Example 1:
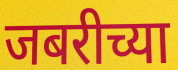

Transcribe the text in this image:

जबरीच्या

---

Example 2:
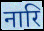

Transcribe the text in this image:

नारि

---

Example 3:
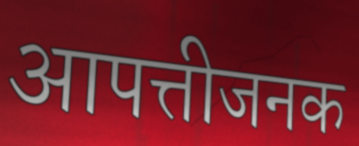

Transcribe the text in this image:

आपत्तीजनक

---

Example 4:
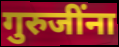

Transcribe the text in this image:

गुरुजींना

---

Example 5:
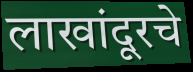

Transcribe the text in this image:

लाखांदूरचे